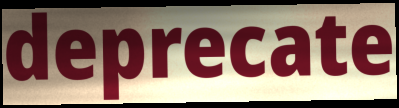
deprecate